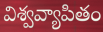
విశ్వవ్యాపితం